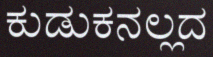
ಕುಡುಕನಲ್ಲದ